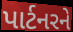
પાર્ટનરને